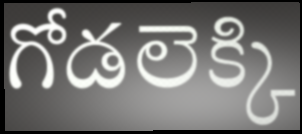
గోడలెక్కి